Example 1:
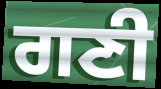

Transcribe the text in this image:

ਗਣੀ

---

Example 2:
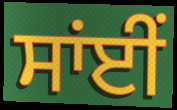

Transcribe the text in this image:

ਸਾਂਈਂ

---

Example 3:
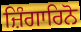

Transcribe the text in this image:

ਜ਼ਿੰਗਾਰਿਨੋ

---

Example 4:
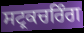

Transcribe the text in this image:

ਸਟ੍ਰਕਚਰਿੰਗ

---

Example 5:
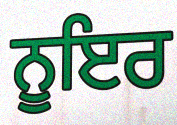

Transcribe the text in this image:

ਨੂਇਰ